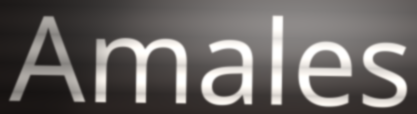
Amales